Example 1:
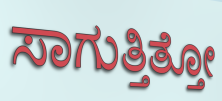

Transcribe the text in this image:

ಸಾಗುತ್ತಿತ್ತೋ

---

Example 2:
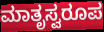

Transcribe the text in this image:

ಮಾತೃಸ್ವರೂಪ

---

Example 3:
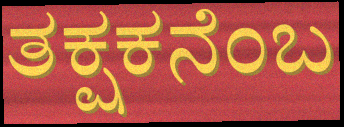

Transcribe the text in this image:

ತಕ್ಷಕನೆಂಬ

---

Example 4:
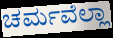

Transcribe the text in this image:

ಚರ್ಮವೆಲ್ಲಾ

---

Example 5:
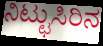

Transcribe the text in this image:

ನಿಟ್ಟುಸಿರಿನ